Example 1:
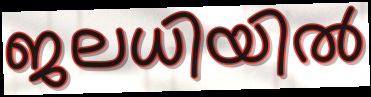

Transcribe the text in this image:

ജലധിയിൽ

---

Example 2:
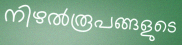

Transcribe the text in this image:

നിഴൽരൂപങ്ങളുടെ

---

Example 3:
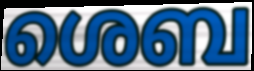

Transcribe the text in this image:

ശെബ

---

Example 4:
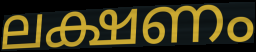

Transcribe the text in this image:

ലക്ഷണം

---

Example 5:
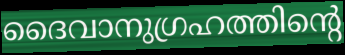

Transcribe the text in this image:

ദൈവാനുഗ്രഹത്തിന്റെ